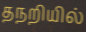
தநறியில்